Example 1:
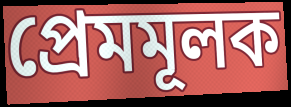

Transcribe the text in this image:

প্রেমমূলক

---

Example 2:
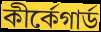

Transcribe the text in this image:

কীর্কেগার্ড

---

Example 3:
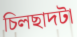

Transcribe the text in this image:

চিলছাদটা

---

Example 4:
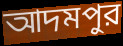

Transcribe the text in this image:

আদমপুর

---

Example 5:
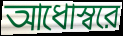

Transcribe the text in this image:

আধোস্বরে